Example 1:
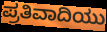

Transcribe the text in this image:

ಪ್ರತಿವಾದಿಯು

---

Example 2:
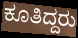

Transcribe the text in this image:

ಕೂತಿದ್ದರು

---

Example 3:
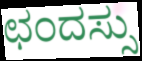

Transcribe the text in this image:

ಛಂದಸ್ಸು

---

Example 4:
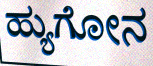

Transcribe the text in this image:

ಹ್ಯುಗೋನ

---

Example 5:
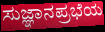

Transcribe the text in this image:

ಸುಜ್ಞಾನಪ್ರಭೆಯ